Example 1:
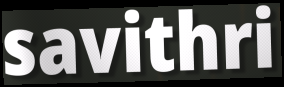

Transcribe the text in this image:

savithri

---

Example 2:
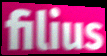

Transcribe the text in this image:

filius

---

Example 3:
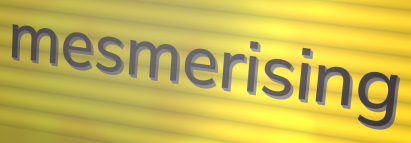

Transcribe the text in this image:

mesmerising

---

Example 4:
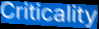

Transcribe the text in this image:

Criticality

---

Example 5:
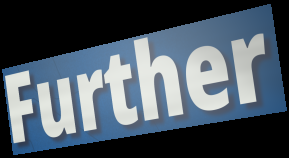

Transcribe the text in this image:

Further